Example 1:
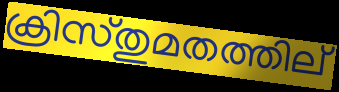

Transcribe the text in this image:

ക്രിസ്തുമതത്തില്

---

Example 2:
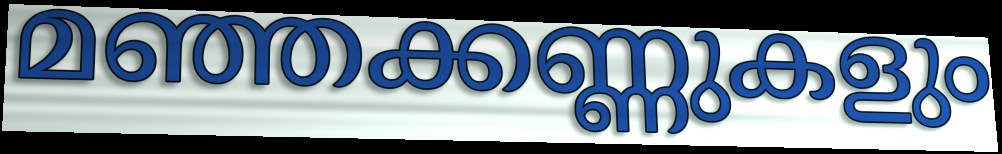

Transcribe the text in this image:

മഞ്ഞക്കണ്ണുകളും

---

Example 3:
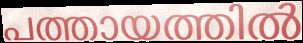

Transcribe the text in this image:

പത്തായത്തിൽ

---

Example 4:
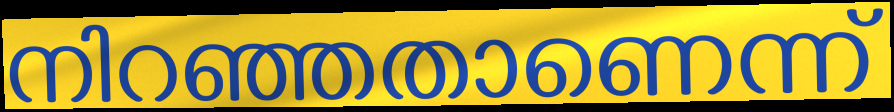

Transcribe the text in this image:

നിറഞ്ഞതാണെന്ന്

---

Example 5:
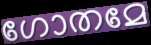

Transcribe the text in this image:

ഗോതമേ